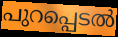
പുറപ്പെടൽ